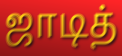
ஜாடித்